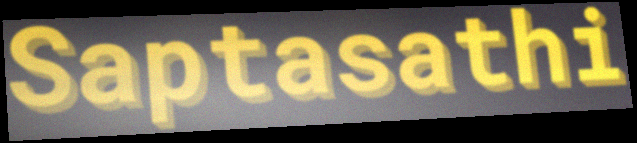
Saptasathi